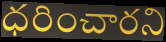
ధరించారని